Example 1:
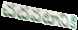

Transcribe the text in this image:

చదవటానికి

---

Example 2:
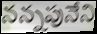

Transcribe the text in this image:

నన్నపునేని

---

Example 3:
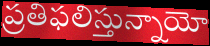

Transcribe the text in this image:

ప్రతిఫలిస్తున్నాయో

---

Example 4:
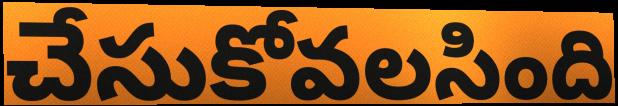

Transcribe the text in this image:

చేసుకోవలసింది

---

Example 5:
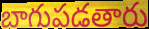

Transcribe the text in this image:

బాగుపడతారు